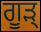
ਗੂੜ੍